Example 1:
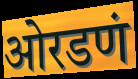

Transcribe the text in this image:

ओरडणं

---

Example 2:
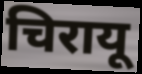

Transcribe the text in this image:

चिरायू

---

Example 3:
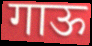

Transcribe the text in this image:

गाऊ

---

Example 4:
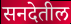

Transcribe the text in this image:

सनदेतील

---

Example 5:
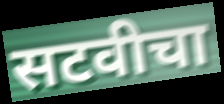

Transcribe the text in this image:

सटवीचा